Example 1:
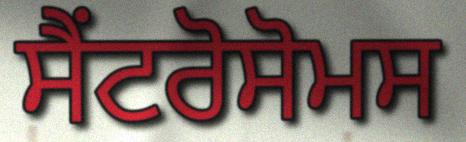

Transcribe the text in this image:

ਸੈਂਟਰੋਸੋਮਸ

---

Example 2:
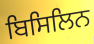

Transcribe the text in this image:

ਬਿਸਿਲਿਨ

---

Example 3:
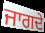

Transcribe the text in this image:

ਜਾਗਦੇ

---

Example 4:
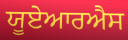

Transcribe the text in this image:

ਯੂਏਆਰਐਸ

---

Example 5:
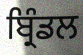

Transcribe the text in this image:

ਬ੍ਰਿੰਡਲ